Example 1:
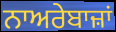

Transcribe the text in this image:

ਨਾਅਰੇਬਾਜ਼ਾਂ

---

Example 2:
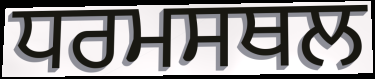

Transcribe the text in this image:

ਧਰਮਸਥਲ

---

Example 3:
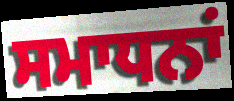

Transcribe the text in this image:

ਸਮਾਧਨਾਂ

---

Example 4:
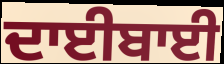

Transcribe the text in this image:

ਦਾਈਬਾਈ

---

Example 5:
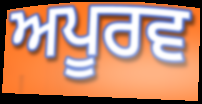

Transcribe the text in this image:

ਅਪੂਰਵ